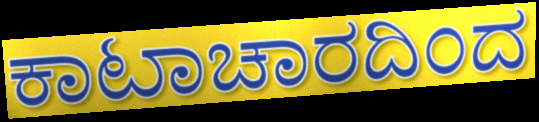
ಕಾಟಾಚಾರದಿಂದ